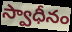
స్వాధీనం